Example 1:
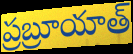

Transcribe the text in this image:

ప్రబ్రూయాత్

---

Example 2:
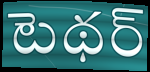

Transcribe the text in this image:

టెథర్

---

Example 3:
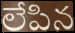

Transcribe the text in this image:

లేపిన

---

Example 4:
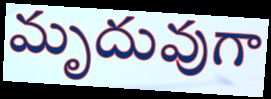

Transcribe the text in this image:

మృదువుగా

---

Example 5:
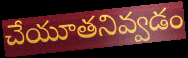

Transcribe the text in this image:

చేయూతనివ్వడం